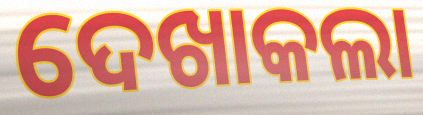
ଦେଖାକଲା